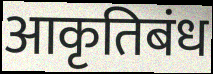
आकृतिबंध